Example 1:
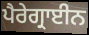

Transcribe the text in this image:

ਪੈਰੇਗ੍ਰਾਈਨ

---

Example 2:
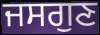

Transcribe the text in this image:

ਜਸਗੁਣ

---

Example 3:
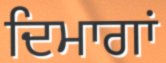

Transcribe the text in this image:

ਦਿਮਾਗਾਂ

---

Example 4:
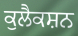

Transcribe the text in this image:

ਕੁਲੈਕਸ਼ਨ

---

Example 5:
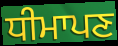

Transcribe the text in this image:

ਧੀਮਾਪਣ